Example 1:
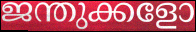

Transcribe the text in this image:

ജന്തുക്കളോ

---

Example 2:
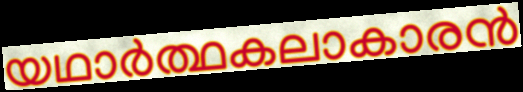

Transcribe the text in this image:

യഥാർത്ഥകലാകാരൻ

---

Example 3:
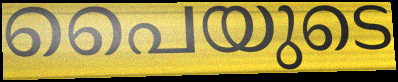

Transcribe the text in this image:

പൈയുടെ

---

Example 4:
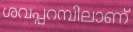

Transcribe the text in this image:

ശവപ്പറമ്പിലാണ്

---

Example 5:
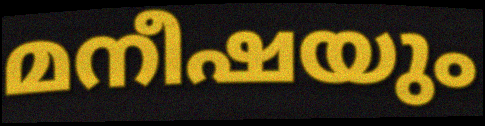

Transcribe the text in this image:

മനീഷയും